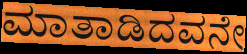
ಮಾತಾಡಿದವನೇ